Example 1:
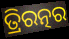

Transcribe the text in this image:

ତ୍ରିରତ୍ନର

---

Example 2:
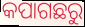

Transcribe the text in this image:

କପାଗଛରୁ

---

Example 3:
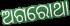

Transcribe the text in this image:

ଅଗରୋଥା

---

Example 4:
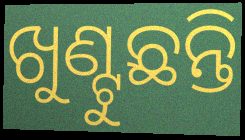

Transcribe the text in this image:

ଖୁଣ୍ଟୁଛନ୍ତି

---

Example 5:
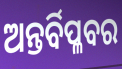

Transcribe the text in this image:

ଅନ୍ତର୍ବିପ୍ଳବର